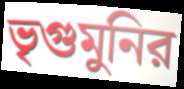
ভৃগুমুনির